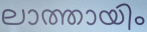
ലാത്തായിം